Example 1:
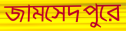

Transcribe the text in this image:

জামসেদপুরে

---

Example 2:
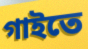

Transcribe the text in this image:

গাইতে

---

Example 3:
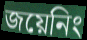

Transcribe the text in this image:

জয়েনিং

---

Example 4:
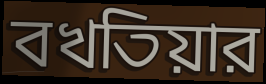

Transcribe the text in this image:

বখতিয়ার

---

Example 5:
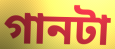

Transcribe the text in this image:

গানটা